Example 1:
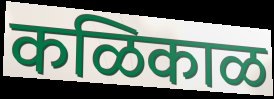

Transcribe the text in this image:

कळिकाळ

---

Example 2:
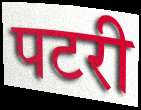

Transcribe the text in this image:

पटरी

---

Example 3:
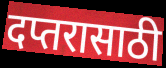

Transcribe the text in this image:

दप्तरासाठी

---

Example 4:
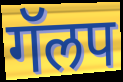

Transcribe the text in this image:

गॅलप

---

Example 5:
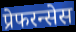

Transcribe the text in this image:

प्रेफरन्सेस